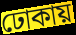
ঢোকায়